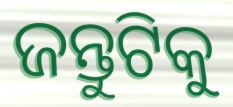
ଜନ୍ତୁଟିକୁ